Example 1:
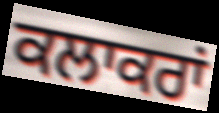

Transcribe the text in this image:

ਕਲਾਕਰਾਂ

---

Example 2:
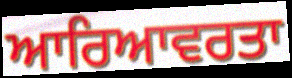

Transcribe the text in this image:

ਆਰਿਆਵਰਤਾ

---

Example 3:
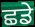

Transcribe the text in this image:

ਛਡੇ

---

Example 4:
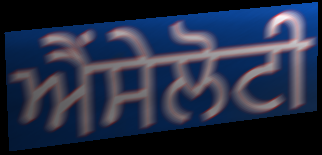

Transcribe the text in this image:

ਐਂਸੇਲੋਟੀ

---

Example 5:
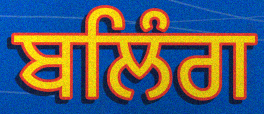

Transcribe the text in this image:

ਬਲਿੰਗ